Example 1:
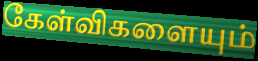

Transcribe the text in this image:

கேள்விகளையும்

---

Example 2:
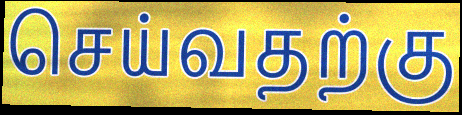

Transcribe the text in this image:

செய்வதற்கு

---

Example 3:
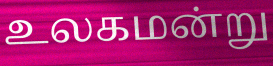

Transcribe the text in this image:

உலகமன்று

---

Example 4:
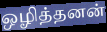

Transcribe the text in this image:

ஒழித்தனன்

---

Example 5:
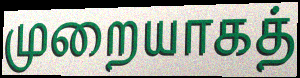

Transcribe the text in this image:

முறையாகத்